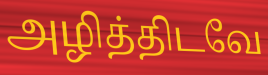
அழித்திடவே